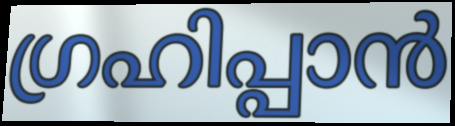
ഗ്രഹിപ്പാൻ